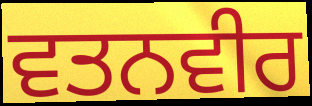
ਵਤਨਵੀਰ